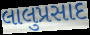
લાલુપ્રસાદ